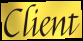
Client